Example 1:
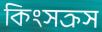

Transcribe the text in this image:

কিংসক্রস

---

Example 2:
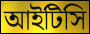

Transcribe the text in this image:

আইটিসি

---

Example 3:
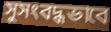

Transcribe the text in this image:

সুসংবদ্ধভাবে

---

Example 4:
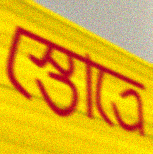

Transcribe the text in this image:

স্তোত্রে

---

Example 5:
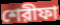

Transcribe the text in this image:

শেরীফা